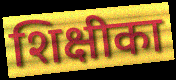
शिक्षीका